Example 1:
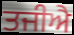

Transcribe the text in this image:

ਤਜੀਐ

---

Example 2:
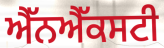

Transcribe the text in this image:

ਐੱਨਐੱਕਸਟੀ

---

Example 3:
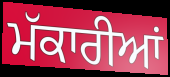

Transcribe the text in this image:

ਮੱਕਾਰੀਆਂ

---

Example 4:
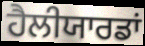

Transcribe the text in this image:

ਹੈਲੀਯਾਰਡਾਂ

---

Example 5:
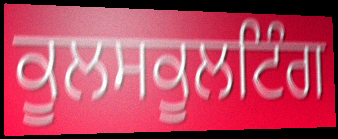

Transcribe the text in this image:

ਕੂਲਸਕੂਲਟਿੰਗ